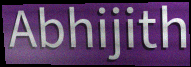
Abhijith